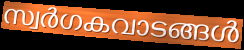
സ്വർഗകവാടങ്ങൾ